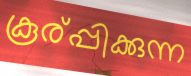
കൂര്പ്പിക്കുന്ന